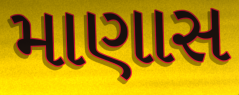
માણાસ